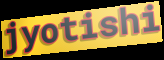
jyotishi